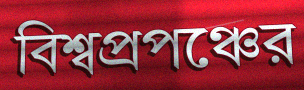
বিশ্বপ্রপঞ্চের